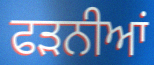
ਫੜਨੀਆਂ